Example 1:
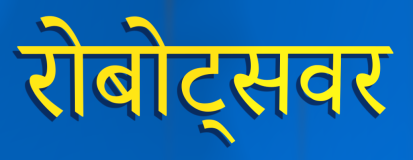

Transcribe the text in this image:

रोबोट्सवर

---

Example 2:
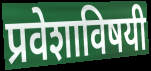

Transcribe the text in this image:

प्रवेशाविषयी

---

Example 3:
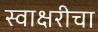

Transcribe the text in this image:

स्वाक्षरीचा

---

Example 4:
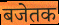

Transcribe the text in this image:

बजेतक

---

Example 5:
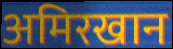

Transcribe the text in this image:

अमिरखान